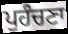
ਪੁਹੰਚਣਾ